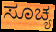
ಸೂಚ್ಯ